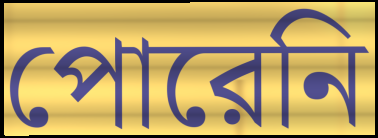
পোরেনি